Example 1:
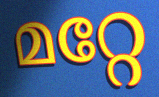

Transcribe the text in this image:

മറ്റേ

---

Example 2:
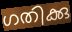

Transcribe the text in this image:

ഗതിക്കു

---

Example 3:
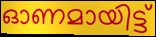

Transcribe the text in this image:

ഓണമായിട്ട്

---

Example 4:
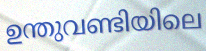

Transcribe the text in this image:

ഉന്തുവണ്ടിയിലെ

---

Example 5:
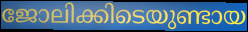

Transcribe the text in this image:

ജോലിക്കിടെയുണ്ടായ